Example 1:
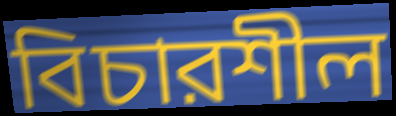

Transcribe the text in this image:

বিচারশীল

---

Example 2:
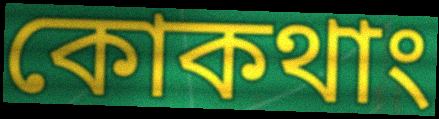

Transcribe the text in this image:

কোকথাং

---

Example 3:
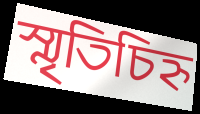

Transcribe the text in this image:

স্মৃতিচিহ্ন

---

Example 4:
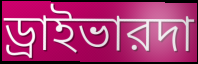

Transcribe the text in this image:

ড্রাইভারদা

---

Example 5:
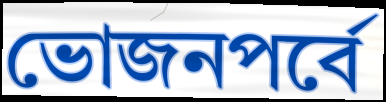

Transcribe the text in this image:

ভোজনপর্বে